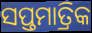
ସପ୍ତମାତ୍ରିକ